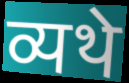
व्यथे